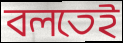
বলতেই